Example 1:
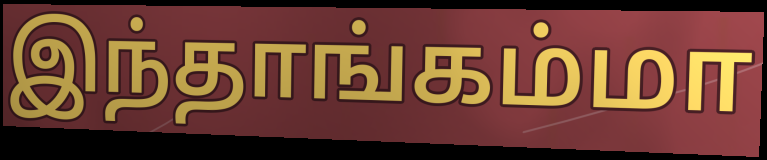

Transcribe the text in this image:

இந்தாங்கம்மா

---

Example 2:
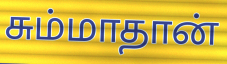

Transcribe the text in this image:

சும்மாதான்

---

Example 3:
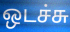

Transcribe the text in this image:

ஒடச்சு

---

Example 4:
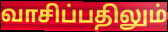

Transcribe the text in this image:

வாசிப்பதிலும்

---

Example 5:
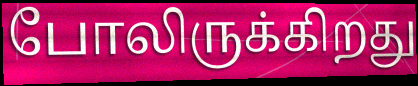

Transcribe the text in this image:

போலிருக்கிறது